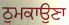
ਠੁਮਕਾਉਣਾ